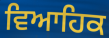
ਵਿਆਹਿਕ